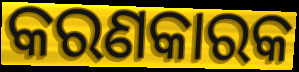
କରଣକାରକ